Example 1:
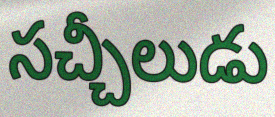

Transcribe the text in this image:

సచ్చీలుడు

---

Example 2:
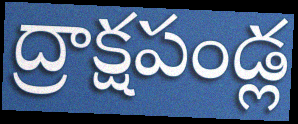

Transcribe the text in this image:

ద్రాక్షపండ్ల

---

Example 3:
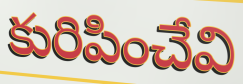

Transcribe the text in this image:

కురిపించేవి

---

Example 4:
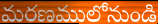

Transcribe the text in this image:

మరణములోనుండి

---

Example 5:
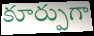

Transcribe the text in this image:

కూర్పుగా